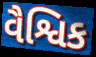
વૈશ્વિક